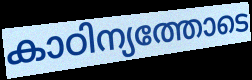
കാഠിന്യത്തോടെ